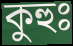
কুহুঃ